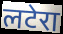
लटेरा